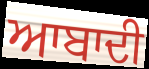
ਆਬਾਦੀ